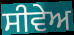
ਸੀਵੇਅ